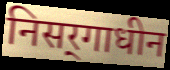
निसर्गाधीन